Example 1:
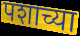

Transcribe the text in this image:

पशाच्या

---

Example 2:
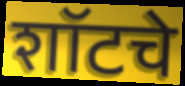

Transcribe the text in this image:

शॉटचे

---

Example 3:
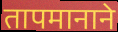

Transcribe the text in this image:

तापमानाने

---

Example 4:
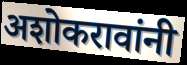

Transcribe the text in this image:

अशोकरावांनी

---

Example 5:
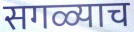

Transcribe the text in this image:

सगळ्याच